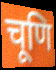
चूणि